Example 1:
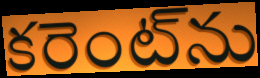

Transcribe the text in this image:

కరెంట్‌ను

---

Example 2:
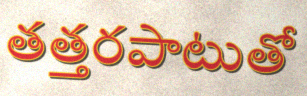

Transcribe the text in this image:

తత్తరపాటుతో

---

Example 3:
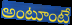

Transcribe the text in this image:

అంటూంటే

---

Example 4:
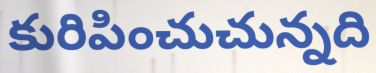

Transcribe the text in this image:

కురిపించుచున్నది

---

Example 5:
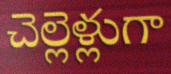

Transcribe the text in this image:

చెల్లెళ్లుగా